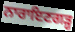
ਨਾਰਾਇਣਗੜ੍ਹ